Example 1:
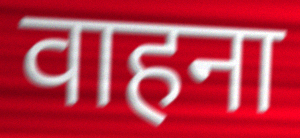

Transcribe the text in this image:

वाहना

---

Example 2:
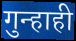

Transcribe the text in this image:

गुन्हाही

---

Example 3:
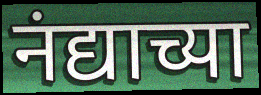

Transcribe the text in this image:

नंद्याच्या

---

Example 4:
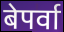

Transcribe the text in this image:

बेपर्वा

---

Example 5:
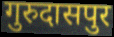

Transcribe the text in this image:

गुरुदासपुर